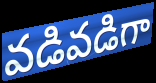
వడివడిగా